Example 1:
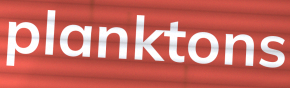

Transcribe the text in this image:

planktons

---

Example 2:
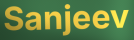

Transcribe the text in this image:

Sanjeev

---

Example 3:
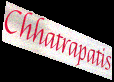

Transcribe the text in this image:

Chhatrapatis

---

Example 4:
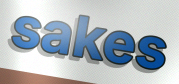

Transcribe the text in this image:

sakes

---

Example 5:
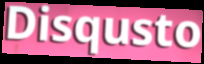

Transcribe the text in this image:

Disqusto